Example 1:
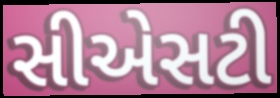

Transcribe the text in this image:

સીએસટી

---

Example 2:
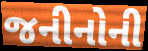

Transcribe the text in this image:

જનીનોની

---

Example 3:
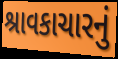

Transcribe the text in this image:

શ્રાવકાચારનું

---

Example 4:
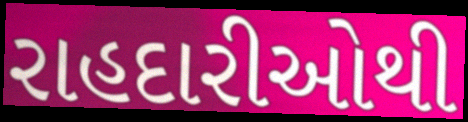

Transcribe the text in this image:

રાહદારીઓથી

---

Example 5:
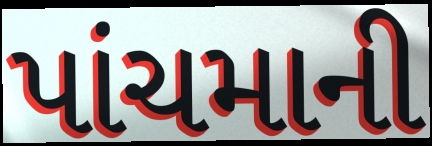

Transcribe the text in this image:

પાંચમાની